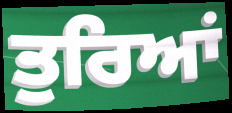
ਤੁਰਿਆਂ